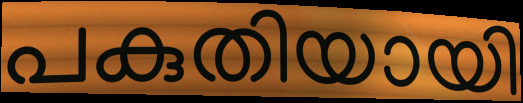
പകുതിയായി